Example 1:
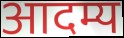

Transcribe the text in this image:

आदम्य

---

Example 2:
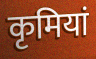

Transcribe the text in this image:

कृमियां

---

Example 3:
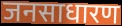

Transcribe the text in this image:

जनसाधारण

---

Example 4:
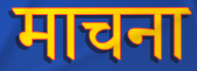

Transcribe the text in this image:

माचना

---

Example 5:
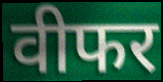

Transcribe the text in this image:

वीफर